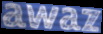
awaz